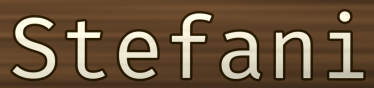
Stefani